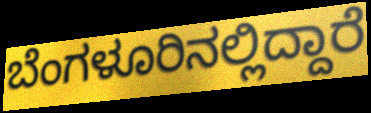
ಬೆಂಗಳೂರಿನಲ್ಲಿದ್ದಾರೆ